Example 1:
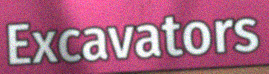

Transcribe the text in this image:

Excavators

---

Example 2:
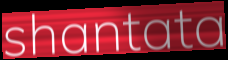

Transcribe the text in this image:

shantata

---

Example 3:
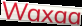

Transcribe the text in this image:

Waxaa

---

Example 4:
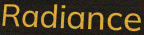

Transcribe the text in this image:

Radiance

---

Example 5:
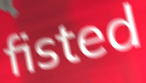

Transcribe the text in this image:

fisted